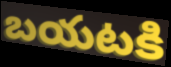
బయటకి